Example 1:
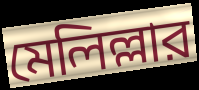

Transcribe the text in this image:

মেলিল্লার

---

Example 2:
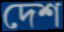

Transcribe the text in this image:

দেশ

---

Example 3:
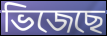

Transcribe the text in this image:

ভিজেছে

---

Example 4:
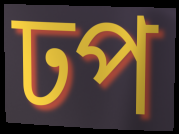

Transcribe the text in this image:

ঢপ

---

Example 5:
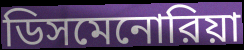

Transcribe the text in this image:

ডিসমেনোরিয়া